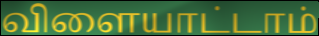
விளையாட்டாம்